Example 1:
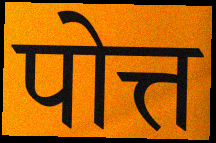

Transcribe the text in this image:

पोत्त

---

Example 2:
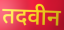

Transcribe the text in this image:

तदवीन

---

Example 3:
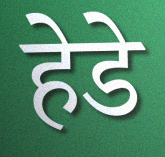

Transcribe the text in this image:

हेडे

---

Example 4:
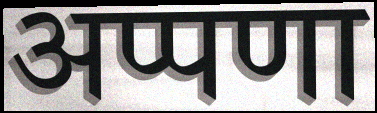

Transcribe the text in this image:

अप्पणा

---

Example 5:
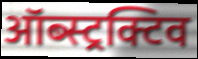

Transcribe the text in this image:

ऑब्स्ट्रक्टिव